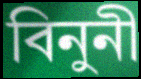
বিনুনী